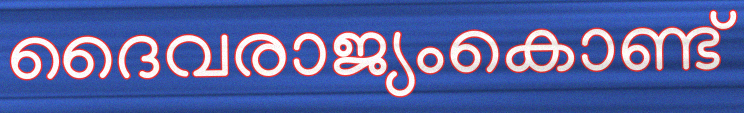
ദൈവരാജ്യംകൊണ്ട്